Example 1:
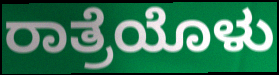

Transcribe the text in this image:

ರಾತ್ರೆಯೊಳು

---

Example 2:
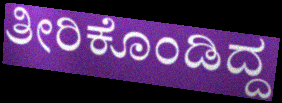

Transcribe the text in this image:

ತೀರಿಕೊಂಡಿದ್ದ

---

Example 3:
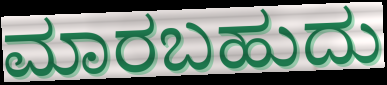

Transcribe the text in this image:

ಮಾರಬಹುದು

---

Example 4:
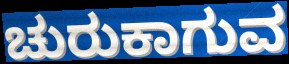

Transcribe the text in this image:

ಚುರುಕಾಗುವ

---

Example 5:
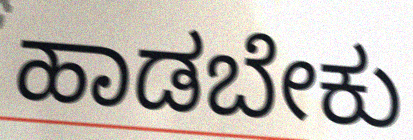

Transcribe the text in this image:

ಹಾಡಬೇಕು